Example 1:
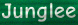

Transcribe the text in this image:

Junglee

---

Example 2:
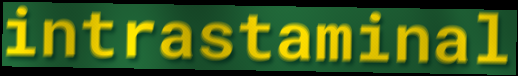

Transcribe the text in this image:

intrastaminal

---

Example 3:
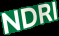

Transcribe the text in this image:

NDRI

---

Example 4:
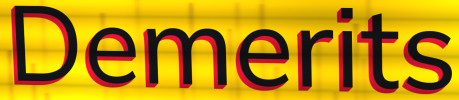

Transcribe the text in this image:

Demerits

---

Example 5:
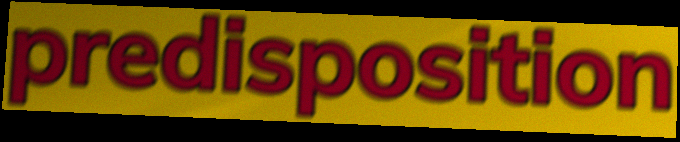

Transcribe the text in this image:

predisposition